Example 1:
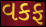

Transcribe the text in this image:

વકફ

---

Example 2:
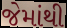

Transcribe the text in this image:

જેમાંથી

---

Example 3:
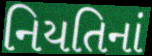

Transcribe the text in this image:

નિયતિનાં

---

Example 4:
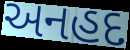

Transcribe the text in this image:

અનહદ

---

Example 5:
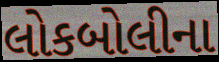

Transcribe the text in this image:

લોકબોલીના